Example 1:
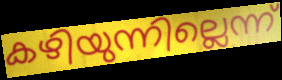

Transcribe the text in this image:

കഴിയുന്നില്ലെന്ന്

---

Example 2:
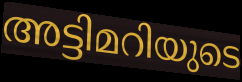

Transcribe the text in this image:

അട്ടിമറിയുടെ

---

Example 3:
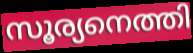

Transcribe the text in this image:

സൂര്യനെത്തി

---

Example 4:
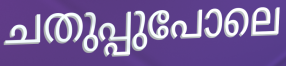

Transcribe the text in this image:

ചതുപ്പുപോലെ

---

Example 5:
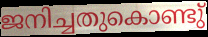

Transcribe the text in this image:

ജനിച്ചതുകൊണ്ടു്